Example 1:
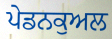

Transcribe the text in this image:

ਪੇਡਨਕੁਅਲ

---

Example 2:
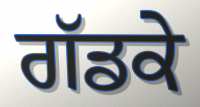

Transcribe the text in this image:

ਗੱਡਕੇ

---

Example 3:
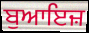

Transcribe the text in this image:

ਬੁਆਇਜ਼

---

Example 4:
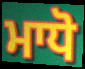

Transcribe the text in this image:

ਮਾਧੋ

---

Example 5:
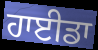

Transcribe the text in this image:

ਹਾਈਡਾ